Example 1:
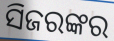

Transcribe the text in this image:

ସିଜରଙ୍କର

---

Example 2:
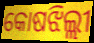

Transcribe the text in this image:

କୋଷଝିଲ୍ଲୀ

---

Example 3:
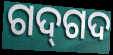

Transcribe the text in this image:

ଗଦ୍‍ଗଦ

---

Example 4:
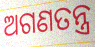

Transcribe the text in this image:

ଅଗଣତନ୍ତ୍ର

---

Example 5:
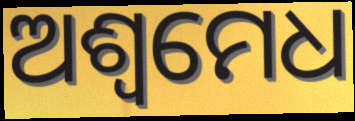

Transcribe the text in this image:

ଅଶ୍ବମେଧ